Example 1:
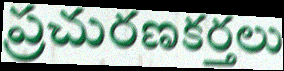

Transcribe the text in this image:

ప్రచురణకర్తలు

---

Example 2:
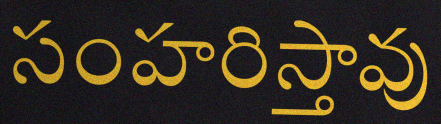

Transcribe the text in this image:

సంహరిస్తావు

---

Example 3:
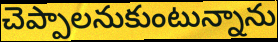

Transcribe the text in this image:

చెప్పాలనుకుంటున్నాను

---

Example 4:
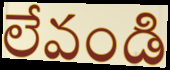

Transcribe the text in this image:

లేవండి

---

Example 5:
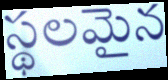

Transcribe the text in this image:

స్థలమైన